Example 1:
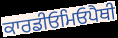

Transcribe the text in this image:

ਕਾਰਡੀਓਮਿਓਪੈਥੀ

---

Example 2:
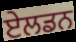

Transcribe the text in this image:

ਏਲਡਨ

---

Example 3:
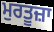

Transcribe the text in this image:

ਮੁਰਤੂਜ਼ਾ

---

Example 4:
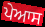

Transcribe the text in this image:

ਪੇਆਸ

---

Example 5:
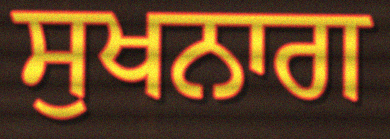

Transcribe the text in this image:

ਸੁਖਨਾਗ